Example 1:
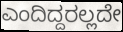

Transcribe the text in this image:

ಎಂದಿದ್ದರಲ್ಲದೇ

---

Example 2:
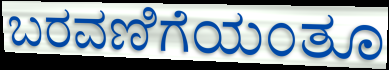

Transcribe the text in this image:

ಬರವಣಿಗೆಯಂತೂ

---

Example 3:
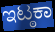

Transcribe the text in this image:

ಇಟ್ಠಕಾ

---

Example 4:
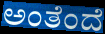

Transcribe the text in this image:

ಅಂತೆಂದೆ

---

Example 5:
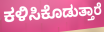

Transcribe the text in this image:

ಕಳಿಸಿಕೊಡುತ್ತಾರೆ